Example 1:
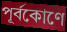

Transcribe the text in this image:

পূর্বকোণে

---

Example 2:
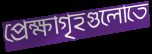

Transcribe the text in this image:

প্রেক্ষাগৃহগুলোতে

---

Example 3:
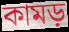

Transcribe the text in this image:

কামড়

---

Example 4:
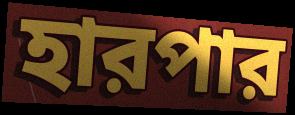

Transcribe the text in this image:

হারপার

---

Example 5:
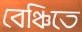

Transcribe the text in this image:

বেঞ্চিতে